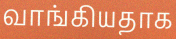
வாங்கியதாக